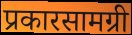
प्रकारसामग्री